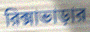
রিক্সাভাড়ার